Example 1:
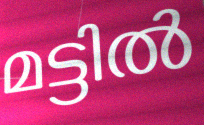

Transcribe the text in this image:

മട്ടിൽ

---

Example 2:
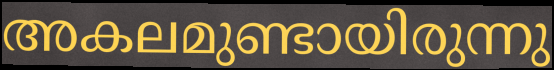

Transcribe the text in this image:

അകലമുണ്ടായിരുന്നു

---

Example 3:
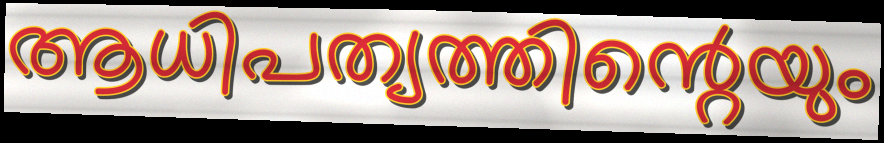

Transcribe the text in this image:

ആധിപത്യത്തിന്റെയും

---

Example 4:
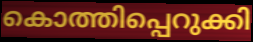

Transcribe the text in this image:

കൊത്തിപ്പെറുക്കി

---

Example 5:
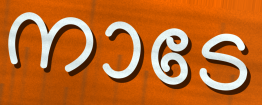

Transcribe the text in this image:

നാടേ